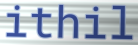
ithil